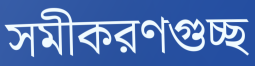
সমীকরণগুচ্ছ